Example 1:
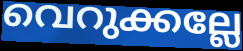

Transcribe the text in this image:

വെറുക്കല്ലേ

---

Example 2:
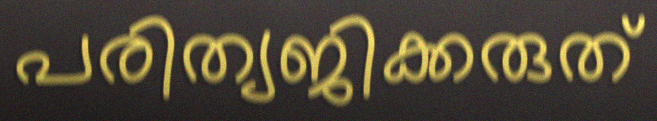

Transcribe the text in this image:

പരിത്യജിക്കരുത്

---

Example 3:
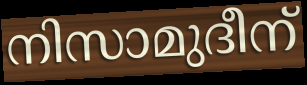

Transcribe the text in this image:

നിസാമുദീന്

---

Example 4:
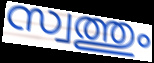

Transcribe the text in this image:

സ്വത്തും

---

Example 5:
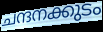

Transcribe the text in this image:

ചന്ദനക്കുടം